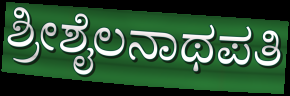
ಶ್ರೀಶೈಲನಾಥಪತಿ